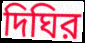
দিঘির